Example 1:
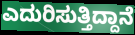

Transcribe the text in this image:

ಎದುರಿಸುತ್ತಿದ್ದಾನೆ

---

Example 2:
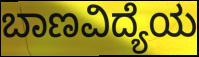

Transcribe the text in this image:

ಬಾಣವಿದ್ಯೆಯ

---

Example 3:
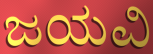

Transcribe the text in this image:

ಜಯವಿ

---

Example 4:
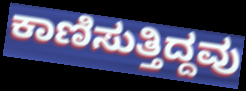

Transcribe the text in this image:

ಕಾಣಿಸುತ್ತಿದ್ದವು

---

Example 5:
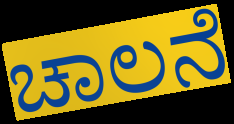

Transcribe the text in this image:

ಚಾಲನೆ